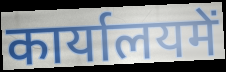
कार्यालयमें